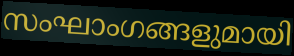
സംഘാംഗങ്ങളുമായി